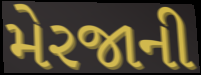
મેરજાની